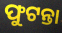
ଫୁଟନ୍ତା